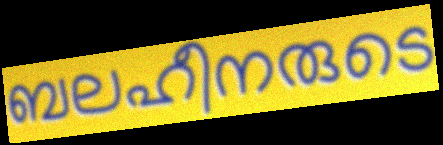
ബലഹീനരുടെ